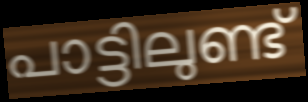
പാട്ടിലുണ്ട്